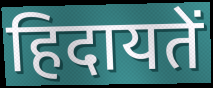
हिदायतें